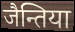
जैन्तिया